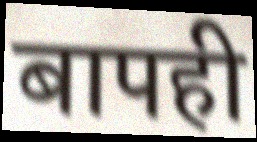
बापही